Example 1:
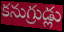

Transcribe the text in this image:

కనుగ్రుడ్లు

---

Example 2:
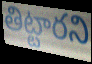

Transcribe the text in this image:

తిట్టారని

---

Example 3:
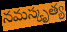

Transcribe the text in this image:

నమస్కృత్య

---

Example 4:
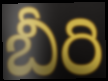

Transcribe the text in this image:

బీరి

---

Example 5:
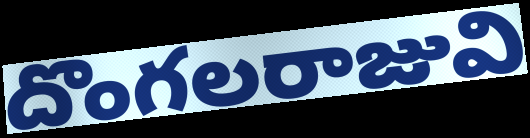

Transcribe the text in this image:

దొంగలరాజువి